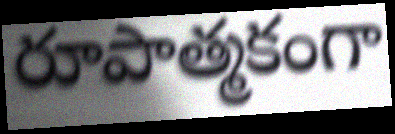
రూపాత్మకంగా